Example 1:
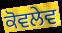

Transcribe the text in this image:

ਕੋਵਲੇਵ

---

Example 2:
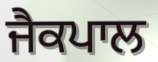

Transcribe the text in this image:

ਜੈਕਪਾਲ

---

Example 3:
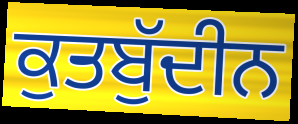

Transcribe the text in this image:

ਕੁਤਬੁੱਦੀਨ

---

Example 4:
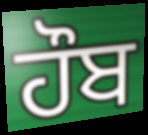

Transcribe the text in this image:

ਹੌਬ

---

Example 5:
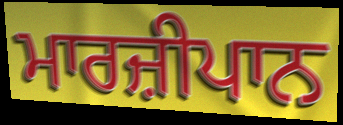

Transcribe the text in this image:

ਮਾਰਜ਼ੀਪਾਨ